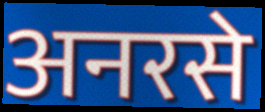
अनरसे